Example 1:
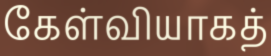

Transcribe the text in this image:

கேள்வியாகத்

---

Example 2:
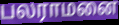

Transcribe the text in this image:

பலராமனை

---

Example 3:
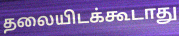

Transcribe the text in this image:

தலையிடக்கூடாது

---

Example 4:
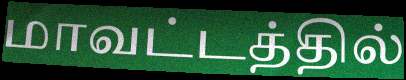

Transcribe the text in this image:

மாவட்டத்தில்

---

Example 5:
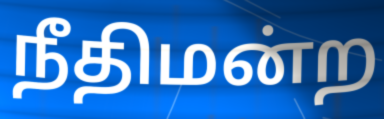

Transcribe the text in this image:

நீதிமன்ற